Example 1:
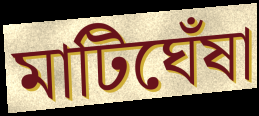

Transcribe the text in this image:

মাটিঘেঁষা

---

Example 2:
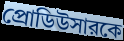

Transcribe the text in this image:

প্রোডিউসারকে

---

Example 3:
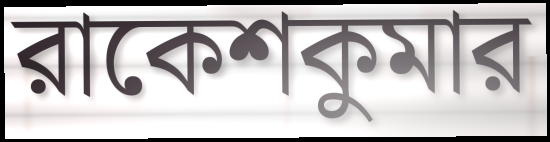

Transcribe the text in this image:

রাকেশকুমার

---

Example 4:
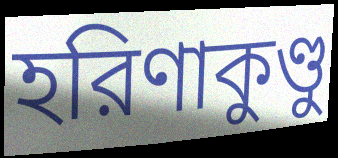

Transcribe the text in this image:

হরিণাকুণ্ডু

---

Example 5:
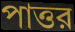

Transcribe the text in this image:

পাত্তর